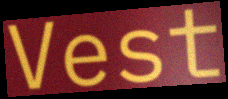
Vest